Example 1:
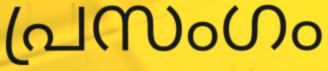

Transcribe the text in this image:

പ്രസംഗം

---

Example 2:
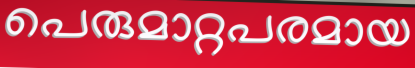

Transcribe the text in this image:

പെരുമാറ്റപരമായ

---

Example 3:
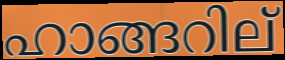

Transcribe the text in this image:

ഹാങ്ങറില്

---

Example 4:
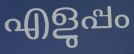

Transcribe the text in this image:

എളുപ്പം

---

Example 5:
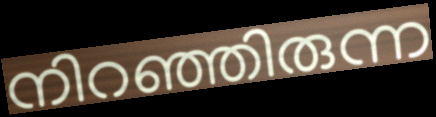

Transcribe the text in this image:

നിറഞ്ഞിരുന്ന